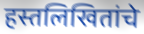
हस्तलिखितांचे